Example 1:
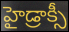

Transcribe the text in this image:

హైడ్రాక్సీ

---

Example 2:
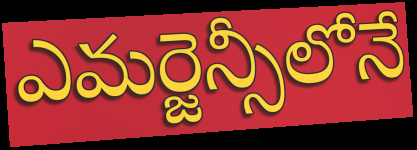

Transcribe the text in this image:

ఎమర్జెన్సీలోనే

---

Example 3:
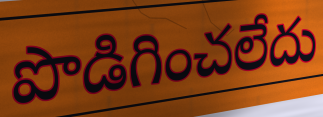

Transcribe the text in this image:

పొడిగించలేదు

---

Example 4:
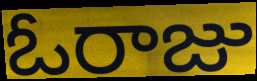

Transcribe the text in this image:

ఓరాజు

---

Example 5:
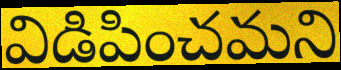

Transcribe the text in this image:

విడిపించమని